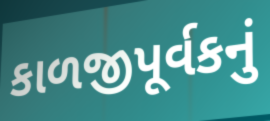
કાળજીપૂર્વકનું